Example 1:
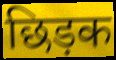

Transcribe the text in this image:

छिड़क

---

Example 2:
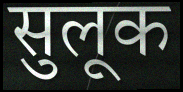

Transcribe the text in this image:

सुलूक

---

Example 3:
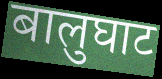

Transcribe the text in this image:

बालुघाट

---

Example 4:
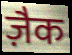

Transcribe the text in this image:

ज़ैक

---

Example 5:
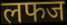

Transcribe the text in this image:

लफज